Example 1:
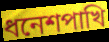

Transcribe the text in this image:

ধনেশপাখি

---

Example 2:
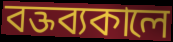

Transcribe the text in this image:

বক্তব্যকালে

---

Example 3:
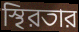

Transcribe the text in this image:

স্থিরতার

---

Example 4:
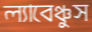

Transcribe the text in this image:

ল্যাবেঞ্চুস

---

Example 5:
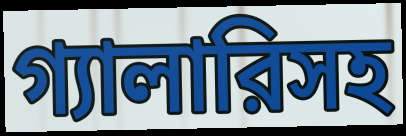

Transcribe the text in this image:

গ্যালারিসহ